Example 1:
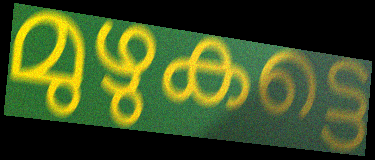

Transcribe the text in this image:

മുഴുകട്ടെ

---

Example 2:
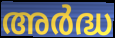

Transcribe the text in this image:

അർദ്ധ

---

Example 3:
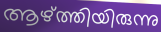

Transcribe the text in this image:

ആഴ്ത്തിയിരുന്നു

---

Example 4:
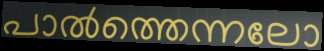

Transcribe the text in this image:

പാൽത്തെന്നലോ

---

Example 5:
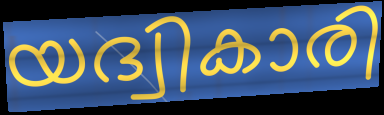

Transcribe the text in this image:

യദ്വികാരി